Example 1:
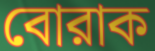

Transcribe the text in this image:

বোরাক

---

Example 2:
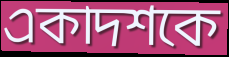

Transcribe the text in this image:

একাদশকে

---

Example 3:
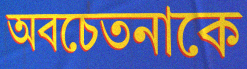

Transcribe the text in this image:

অবচেতনাকে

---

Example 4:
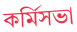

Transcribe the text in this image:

কর্মিসভা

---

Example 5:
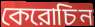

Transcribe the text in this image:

কেরোচিন